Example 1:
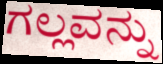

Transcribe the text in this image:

ಗಲ್ಲವನ್ನು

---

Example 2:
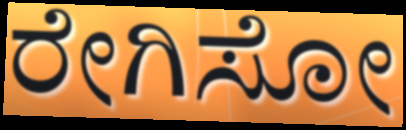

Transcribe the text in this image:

ರೇಗಿಸೋ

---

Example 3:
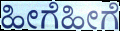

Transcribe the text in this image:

ಹೀಗೆಹೀಗೆ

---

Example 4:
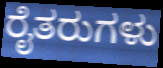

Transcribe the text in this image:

ರೈತರುಗಳು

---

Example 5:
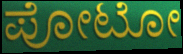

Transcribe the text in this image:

ಪೋಟೋ